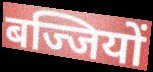
बज्जियों